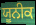
ਯੂਨੀਕ